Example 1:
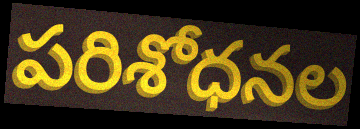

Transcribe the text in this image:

పరిశోధనల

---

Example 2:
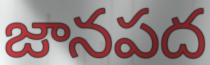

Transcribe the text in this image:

జానపద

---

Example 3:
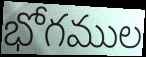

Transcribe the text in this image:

భోగముల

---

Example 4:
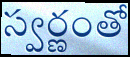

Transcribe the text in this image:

స్వర్ణంతో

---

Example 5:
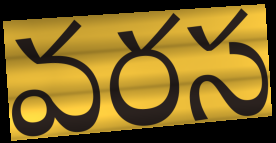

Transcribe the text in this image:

వరస